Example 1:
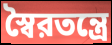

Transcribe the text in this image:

স্বৈরতন্ত্রে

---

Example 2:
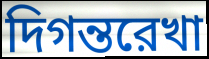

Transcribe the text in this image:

দিগন্তরেখা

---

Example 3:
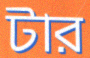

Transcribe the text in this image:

টার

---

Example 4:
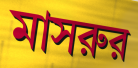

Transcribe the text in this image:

মাসরুর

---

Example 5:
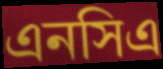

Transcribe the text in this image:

এনসিএ